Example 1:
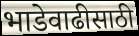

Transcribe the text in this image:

भाडेवाढीसाठी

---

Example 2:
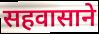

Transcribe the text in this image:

सहवासाने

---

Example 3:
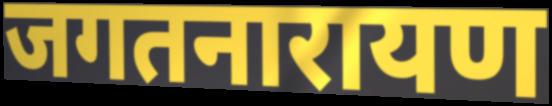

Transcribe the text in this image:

जगतनारायण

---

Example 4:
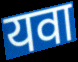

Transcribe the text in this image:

यवा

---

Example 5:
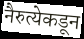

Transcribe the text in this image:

नैरुत्येकडून